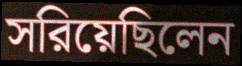
সরিয়েছিলেন